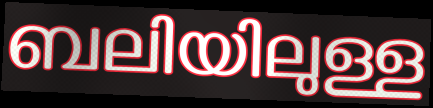
ബലിയിലുള്ള